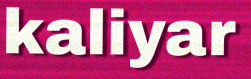
kaliyar